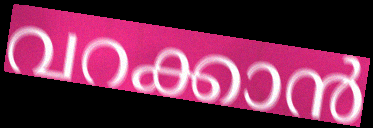
വറക്കാൻ